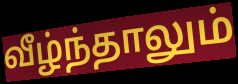
வீழ்ந்தாலும்